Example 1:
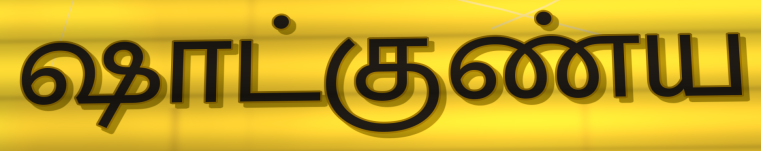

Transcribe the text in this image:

ஷாட்குண்ய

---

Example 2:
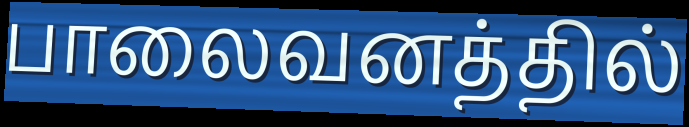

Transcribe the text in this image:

பாலைவனத்தில்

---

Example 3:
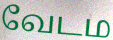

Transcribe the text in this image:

வேடம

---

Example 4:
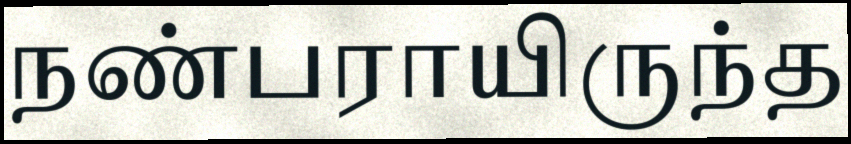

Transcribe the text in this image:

நண்பராயிருந்த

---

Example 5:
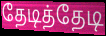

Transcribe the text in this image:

தேடித்தேடி